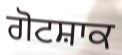
ਗੋਟਸ਼ਾਕ